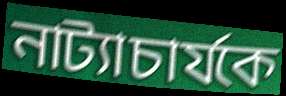
নাট্যাচার্যকে